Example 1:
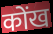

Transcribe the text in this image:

कोंख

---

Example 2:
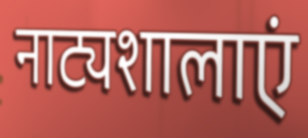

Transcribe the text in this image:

नाट्यशालाएं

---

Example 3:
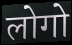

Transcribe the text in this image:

लोगो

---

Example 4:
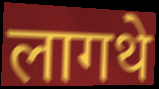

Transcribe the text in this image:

लागथे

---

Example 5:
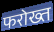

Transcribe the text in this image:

फरोख्त